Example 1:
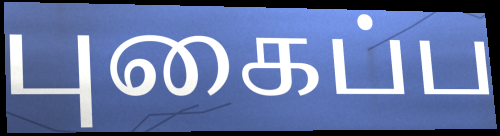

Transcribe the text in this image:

புகைப்ப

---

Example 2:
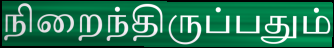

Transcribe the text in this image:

நிறைந்திருப்பதும்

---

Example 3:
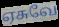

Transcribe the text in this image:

ஏசுவே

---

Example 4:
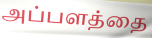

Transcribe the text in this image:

அப்பளத்தை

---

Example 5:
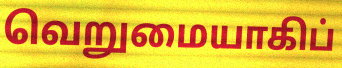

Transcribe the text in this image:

வெறுமையாகிப்